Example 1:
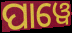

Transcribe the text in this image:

ପାୱେ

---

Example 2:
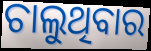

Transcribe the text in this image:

ଚାଲୁଥିବାର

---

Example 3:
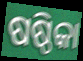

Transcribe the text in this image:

ଷଷ୍ଠିକା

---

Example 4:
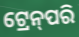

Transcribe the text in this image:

ଟ୍ରେନ୍‌ପରି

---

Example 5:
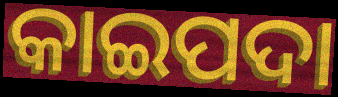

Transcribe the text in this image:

କାଇପଦା